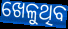
ଖେଳୁଥିବ